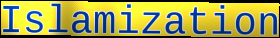
Islamization